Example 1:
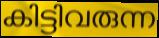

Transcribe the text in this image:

കിട്ടിവരുന്ന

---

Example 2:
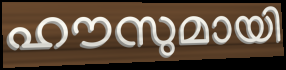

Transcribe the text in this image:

ഹൗസുമായി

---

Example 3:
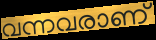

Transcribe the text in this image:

വന്നവരാണ്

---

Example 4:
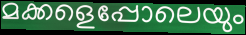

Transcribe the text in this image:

മക്കളെപ്പോലെയും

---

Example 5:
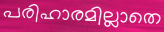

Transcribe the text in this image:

പരിഹാരമില്ലാതെ